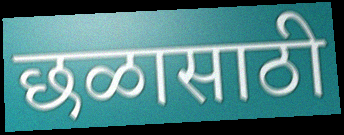
छळासाठी